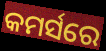
କମର୍ସରେ